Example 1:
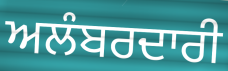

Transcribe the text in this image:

ਅਲੰਬਰਦਾਰੀ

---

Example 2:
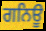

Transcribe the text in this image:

ਗਨਿਊ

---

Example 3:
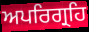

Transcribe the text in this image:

ਅਪਰਿਗ੍ਰਹਿ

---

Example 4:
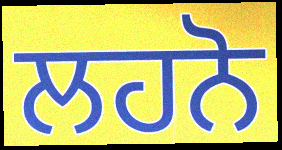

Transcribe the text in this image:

ਲਹਨੋ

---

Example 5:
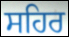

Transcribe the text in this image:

ਸਹਿਰ